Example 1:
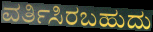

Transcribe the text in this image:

ವರ್ತಿಸಿರಬಹುದು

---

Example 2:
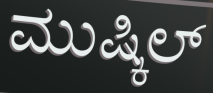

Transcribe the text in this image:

ಮುಷ್ಕಿಲ್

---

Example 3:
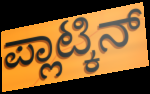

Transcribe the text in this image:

ಪ್ಲಾಟ್ಕಿನ್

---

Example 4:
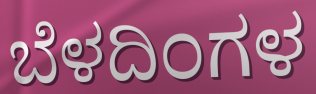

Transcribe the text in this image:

ಬೆಳದಿಂಗಳ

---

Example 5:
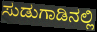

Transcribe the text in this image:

ಸುಡುಗಾಡಿನಲ್ಲಿ